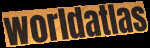
worldatlas